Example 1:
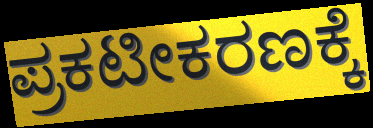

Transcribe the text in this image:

ಪ್ರಕಟೀಕರಣಕ್ಕೆ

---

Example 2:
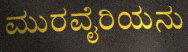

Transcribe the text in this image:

ಮುರವೈರಿಯನು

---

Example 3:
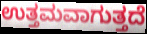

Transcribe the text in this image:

ಉತ್ತಮವಾಗುತ್ತದೆ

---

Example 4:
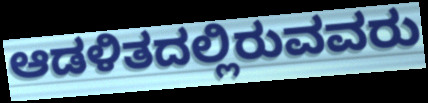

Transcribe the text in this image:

ಆಡಳಿತದಲ್ಲಿರುವವರು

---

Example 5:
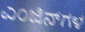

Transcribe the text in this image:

ಎಂಜಿನ್‌ಗಳ